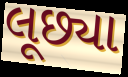
લૂછ્યા